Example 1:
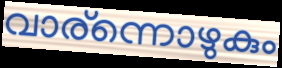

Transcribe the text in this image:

വാര്ന്നൊഴുകും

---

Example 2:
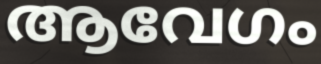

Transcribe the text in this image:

ആവേഗം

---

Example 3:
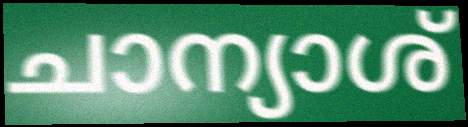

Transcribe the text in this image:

ചാന്യാശ്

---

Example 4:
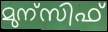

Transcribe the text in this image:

മുന്സിഫ്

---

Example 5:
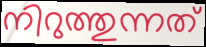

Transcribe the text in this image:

നിറുത്തുന്നത്